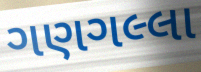
ગણગલ્લા